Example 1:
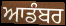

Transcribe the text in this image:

ਆਡੰਬਰ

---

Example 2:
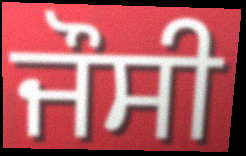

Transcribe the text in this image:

ਜੌਸੀ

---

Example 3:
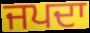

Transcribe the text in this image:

ਜਪਦਾ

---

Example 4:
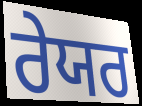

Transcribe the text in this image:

ਰੇਯਰ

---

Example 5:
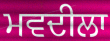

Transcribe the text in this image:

ਮਵਦੀਲਾ